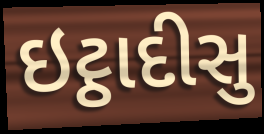
ઇટ્ઠાદીસુ